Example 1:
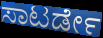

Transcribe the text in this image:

ಸಾಟರ್ಡೇ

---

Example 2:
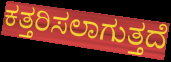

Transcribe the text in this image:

ಕತ್ತರಿಸಲಾಗುತ್ತದೆ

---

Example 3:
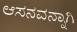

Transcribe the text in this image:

ಆಸನವನ್ನಾಗಿ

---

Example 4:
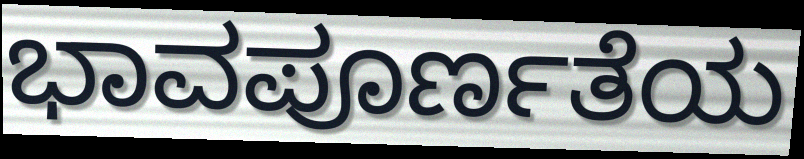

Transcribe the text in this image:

ಭಾವಪೂರ್ಣತೆಯ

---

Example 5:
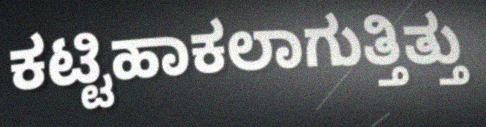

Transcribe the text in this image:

ಕಟ್ಟಿಹಾಕಲಾಗುತ್ತಿತ್ತು